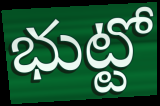
భుట్టో